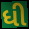
ધી